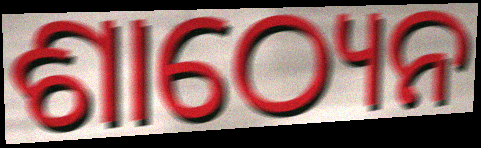
ଶାଠ୍ୟେନ